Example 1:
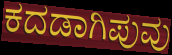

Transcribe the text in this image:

ಕದಡಾಗಿಪುವು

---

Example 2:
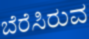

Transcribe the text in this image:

ಬೆರೆಸಿರುವ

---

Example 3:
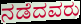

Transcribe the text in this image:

ನಡೆದವರು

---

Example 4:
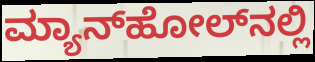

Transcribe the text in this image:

ಮ್ಯಾನ್‌ಹೋಲ್‌ನಲ್ಲಿ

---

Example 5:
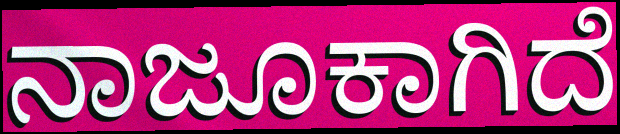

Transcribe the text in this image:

ನಾಜೂಕಾಗಿದೆ